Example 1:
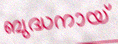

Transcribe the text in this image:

ബുദ്ധനായ്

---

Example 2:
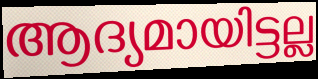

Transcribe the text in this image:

ആദ്യമായിട്ടല്ല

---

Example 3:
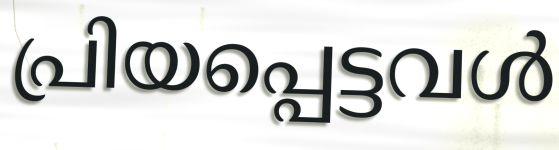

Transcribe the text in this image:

പ്രിയപ്പെട്ടവൾ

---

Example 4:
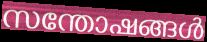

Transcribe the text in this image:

സന്തോഷങ്ങൾ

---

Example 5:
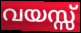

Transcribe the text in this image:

വയസ്സ്